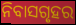
ନିବାସଗୃହର